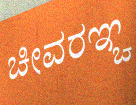
ಚೀವರಞ್ಚ